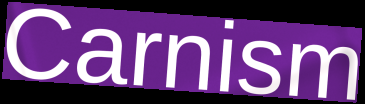
Carnism